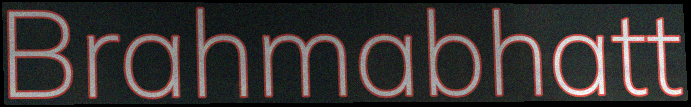
Brahmabhatt